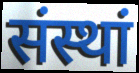
संस्थां